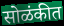
सोळंकीत